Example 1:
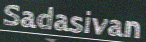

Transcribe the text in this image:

Sadasivan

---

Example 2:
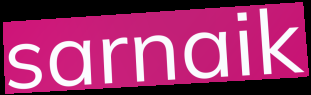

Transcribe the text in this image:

sarnaik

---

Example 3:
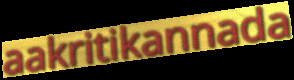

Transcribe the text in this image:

aakritikannada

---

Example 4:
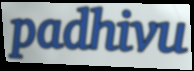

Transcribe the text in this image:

padhivu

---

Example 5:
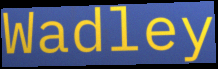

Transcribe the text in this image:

Wadley